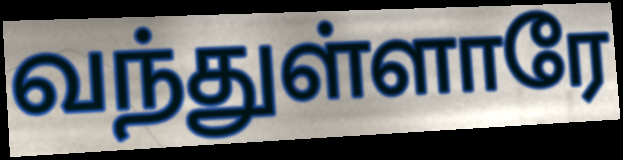
வந்துள்ளாரே